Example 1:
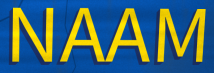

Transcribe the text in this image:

NAAM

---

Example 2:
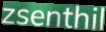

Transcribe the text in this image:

zsenthil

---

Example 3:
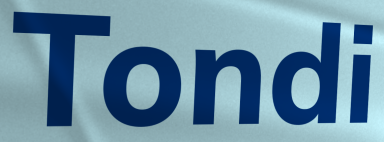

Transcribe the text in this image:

Tondi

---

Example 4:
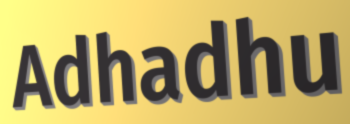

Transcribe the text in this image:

Adhadhu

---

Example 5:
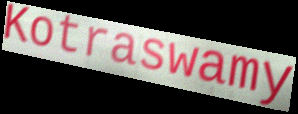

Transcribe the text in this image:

Kotraswamy